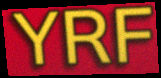
YRF